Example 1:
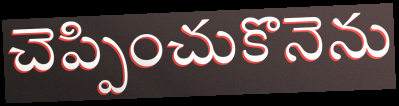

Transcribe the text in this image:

చెప్పించుకొనెను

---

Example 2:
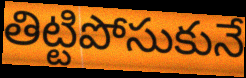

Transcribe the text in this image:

తిట్టిపోసుకునే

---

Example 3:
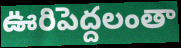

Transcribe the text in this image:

ఊరిపెద్దలంతా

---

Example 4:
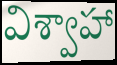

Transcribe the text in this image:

విశ్వాహా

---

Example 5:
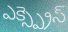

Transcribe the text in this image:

ఎక్స్ప్రెస్